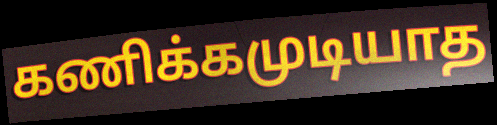
கணிக்கமுடியாத